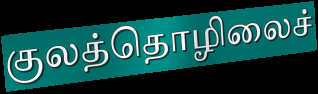
குலத்தொழிலைச்